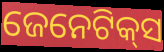
ଜେନେଟିକ୍‌ସ